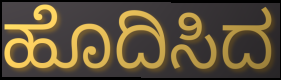
ಹೊದಿಸಿದ